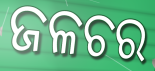
ଜଳଚର